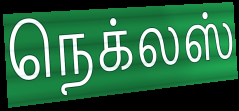
நெக்லஸ்